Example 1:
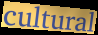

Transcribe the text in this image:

cultural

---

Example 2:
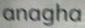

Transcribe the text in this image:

anagha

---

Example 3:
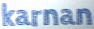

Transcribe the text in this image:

karnan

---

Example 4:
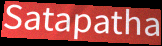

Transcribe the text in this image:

Satapatha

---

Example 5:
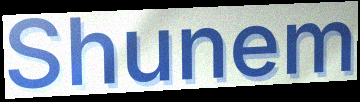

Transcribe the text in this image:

Shunem